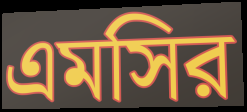
এমসির